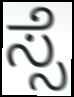
ಸ್ಸೆ